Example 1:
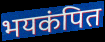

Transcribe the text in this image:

भयकंपित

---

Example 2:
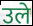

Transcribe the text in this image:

उले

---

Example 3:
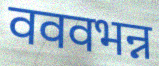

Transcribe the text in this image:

वववभन्न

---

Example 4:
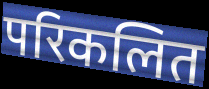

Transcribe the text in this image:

परिकलित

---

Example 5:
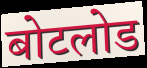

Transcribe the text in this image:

बोटलोड